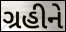
ગ્રહીને